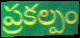
ప్రకల్పం